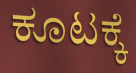
ಕೂಟಕ್ಕೆ